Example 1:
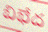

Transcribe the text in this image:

బిభేద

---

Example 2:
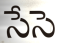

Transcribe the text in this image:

సేసె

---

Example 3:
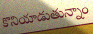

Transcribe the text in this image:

కొనియాడుతున్నాం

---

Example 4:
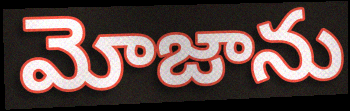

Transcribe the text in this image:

మోజాను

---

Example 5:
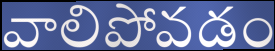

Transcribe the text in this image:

వాలిపోవడం